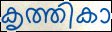
കൃത്തികാ